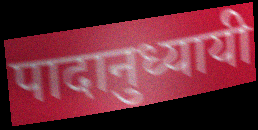
पादानुध्यायी